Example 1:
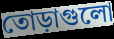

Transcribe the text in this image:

তোড়াগুলো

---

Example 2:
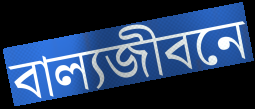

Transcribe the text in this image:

বাল্যজীবনে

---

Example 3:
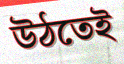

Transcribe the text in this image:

উঠতেই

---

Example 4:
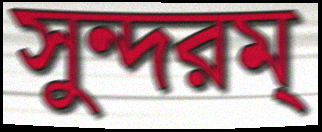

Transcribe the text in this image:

সুন্দরম্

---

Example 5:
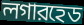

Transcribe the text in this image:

লগারহেড